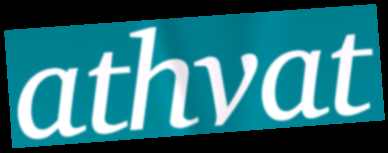
athvat